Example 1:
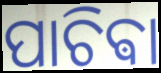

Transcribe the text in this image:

ପାଚିଵା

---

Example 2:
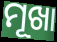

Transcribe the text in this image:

ମୂଖା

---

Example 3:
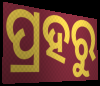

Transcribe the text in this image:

ପ୍ରହରୁ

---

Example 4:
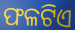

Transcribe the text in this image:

ଫଳଟିଏ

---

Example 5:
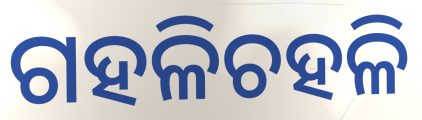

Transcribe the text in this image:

ଗହଳିଚହଳି